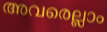
അവരെല്ലാം